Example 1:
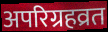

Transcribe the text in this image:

अपरिग्रहव्रत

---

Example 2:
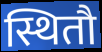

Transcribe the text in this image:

स्थितौ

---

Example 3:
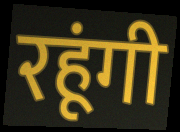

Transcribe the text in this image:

रहूंगी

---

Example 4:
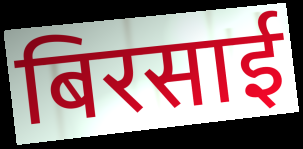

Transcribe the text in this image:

बिरसाई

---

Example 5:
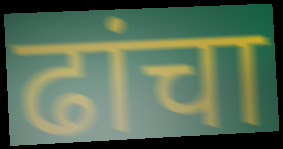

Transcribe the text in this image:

ढांचा